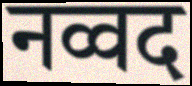
नव्वद